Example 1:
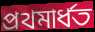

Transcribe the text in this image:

প্ৰথমাৰ্ধত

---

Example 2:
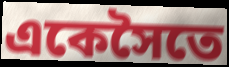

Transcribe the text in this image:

একেসৈতে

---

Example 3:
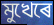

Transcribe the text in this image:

মুখেৰে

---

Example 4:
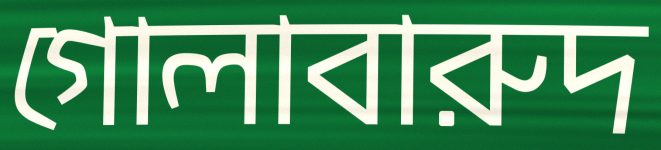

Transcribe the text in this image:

গোলাবাৰুদ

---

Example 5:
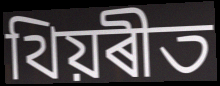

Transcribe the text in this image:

থিয়ৰীত